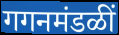
गगनमंडळीं